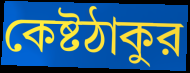
কেষ্টঠাকুর